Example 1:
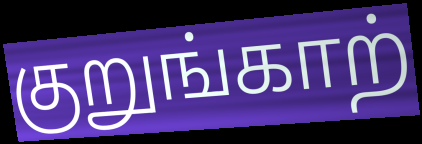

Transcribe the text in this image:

குறுங்காற்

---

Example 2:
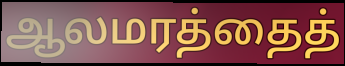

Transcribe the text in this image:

ஆலமரத்தைத்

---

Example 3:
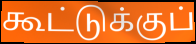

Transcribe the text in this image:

கூட்டுக்குப்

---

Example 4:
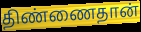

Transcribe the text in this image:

திண்ணைதான்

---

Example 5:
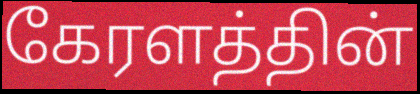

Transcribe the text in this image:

கேரளத்தின்